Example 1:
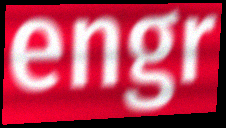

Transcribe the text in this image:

engr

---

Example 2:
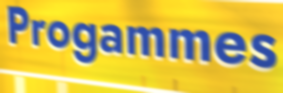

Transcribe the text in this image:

Progammes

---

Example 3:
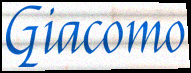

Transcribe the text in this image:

Giacomo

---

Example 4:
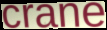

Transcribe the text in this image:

crane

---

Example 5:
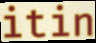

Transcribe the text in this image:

itin